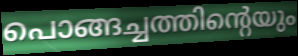
പൊങ്ങച്ചത്തിന്റെയും